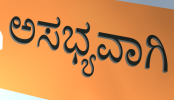
ಅಸಭ್ಯವಾಗಿ